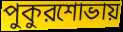
পুকুরশোভায়